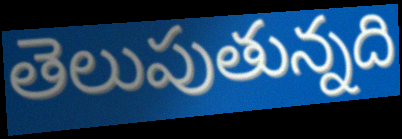
తెలుపుతున్నది